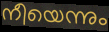
നീയെന്നും